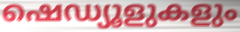
ഷെഡ്യൂളുകളും